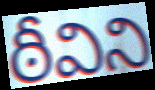
ఠీవిని